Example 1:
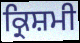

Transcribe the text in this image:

ਕ੍ਰਿਸ਼ਮੀ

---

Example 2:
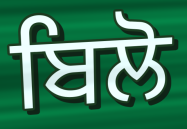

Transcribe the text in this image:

ਬਿਲੋ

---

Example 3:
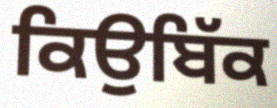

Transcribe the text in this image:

ਕਿਉਬਿੱਕ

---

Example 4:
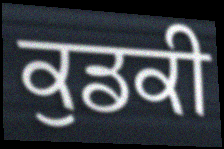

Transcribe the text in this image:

ਕੁਡਕੀ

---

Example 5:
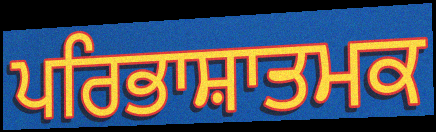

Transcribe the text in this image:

ਪਰਿਭਾਸ਼ਾਤਮਕ